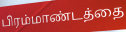
பிரம்மாண்டத்தை